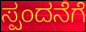
ಸ್ಪಂದನೆಗೆ